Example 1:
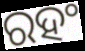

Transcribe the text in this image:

ରହଂ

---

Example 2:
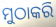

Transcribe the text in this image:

ମୁଠାକରି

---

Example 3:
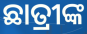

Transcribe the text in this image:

ଛାତ୍ରୀଙ୍କ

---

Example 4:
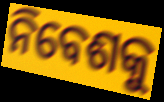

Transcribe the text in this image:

ନିବେଶକୁ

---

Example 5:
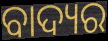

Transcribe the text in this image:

ବାଦ୍ୟର